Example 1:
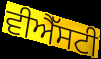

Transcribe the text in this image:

ਵੀਐੱਸਟੀ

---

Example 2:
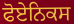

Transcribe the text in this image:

ਫੋਏਨਿਕਸ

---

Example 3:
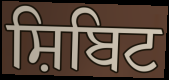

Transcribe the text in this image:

ਸ਼ਿਬਿਟ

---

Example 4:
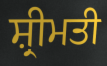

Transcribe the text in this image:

ਸ਼੍ਰੀਮਤੀ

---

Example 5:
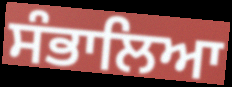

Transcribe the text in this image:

ਸੰਭਾਲਿਆ